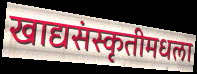
खाद्यसंस्कृतीमधला